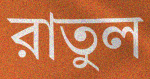
রাতুল